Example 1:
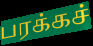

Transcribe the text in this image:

பரக்கச்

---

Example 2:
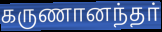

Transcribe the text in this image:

கருணானந்தர்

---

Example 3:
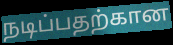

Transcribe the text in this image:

நடிப்பதற்கான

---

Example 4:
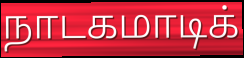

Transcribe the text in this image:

நாடகமாடிக்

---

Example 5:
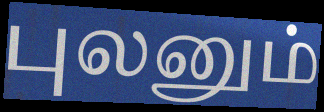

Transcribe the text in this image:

புலனும்